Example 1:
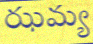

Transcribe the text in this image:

ఝమ్య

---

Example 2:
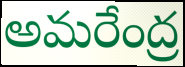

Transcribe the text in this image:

అమరేంద్ర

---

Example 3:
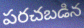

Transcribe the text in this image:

పరచబడిన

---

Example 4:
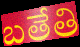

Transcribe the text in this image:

బతేతి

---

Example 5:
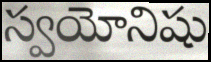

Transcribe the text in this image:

స్వయోనిషు